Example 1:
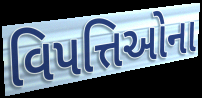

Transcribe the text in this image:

વિપત્તિઓના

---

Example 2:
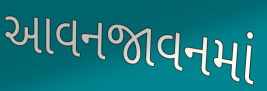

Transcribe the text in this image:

આવનજાવનમાં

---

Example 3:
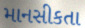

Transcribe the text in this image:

માનસીકતા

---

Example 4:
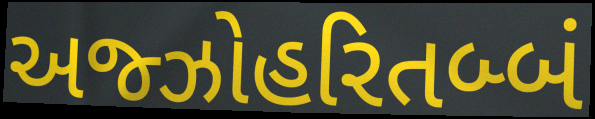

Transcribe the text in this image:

અજ્ઝોહરિતબ્બં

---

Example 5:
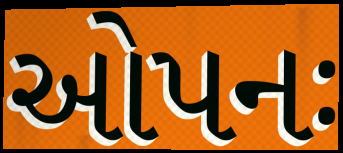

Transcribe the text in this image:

ઓપનઃ